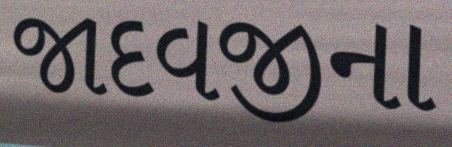
જાદવજીના